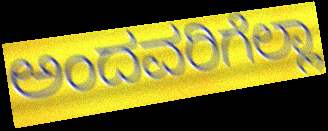
ಅಂದವರಿಗೆಲ್ಲಾ